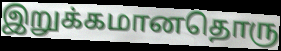
இறுக்கமானதொரு